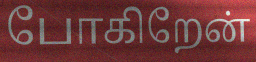
போகிறேன்